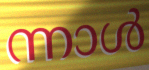
ന്നാൾ